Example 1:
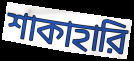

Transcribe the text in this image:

শাকাহারি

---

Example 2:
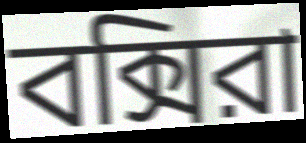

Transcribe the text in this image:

বক্সিরা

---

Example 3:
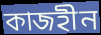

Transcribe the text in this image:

কাজহীন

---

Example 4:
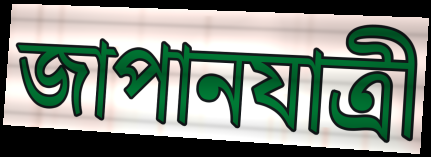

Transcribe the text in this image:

জাপানযাত্রী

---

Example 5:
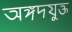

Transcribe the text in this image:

অঙ্গদযুক্ত